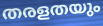
തരളതയും